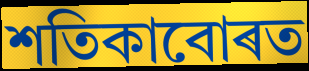
শতিকাবোৰত